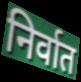
निर्वात